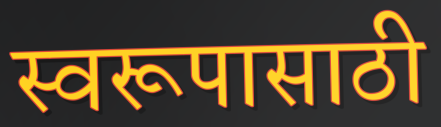
स्वरूपासाठी